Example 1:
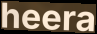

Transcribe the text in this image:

heera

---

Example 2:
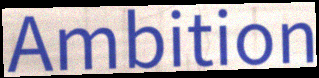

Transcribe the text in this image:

Ambition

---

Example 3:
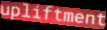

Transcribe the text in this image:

upliftment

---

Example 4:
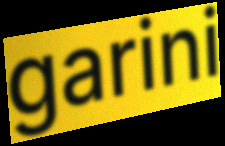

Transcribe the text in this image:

garini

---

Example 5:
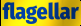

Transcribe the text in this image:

flagellar